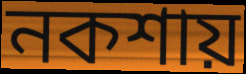
নকশায়